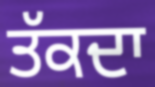
ਤੱਕਦਾ